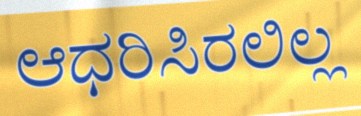
ಆಧರಿಸಿರಲಿಲ್ಲ